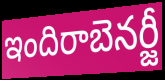
ఇందిరాబెనర్జీ